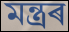
মন্ত্ৰৰ